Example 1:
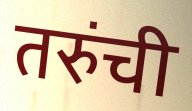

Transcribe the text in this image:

तरुंची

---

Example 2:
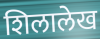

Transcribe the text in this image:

शिलालेख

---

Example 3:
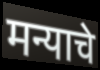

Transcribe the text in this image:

मन्याचे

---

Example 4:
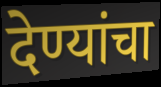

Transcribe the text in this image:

देण्यांचा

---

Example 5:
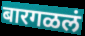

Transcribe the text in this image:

बारगळलं